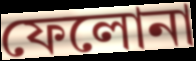
ফেলোনা